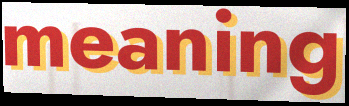
meaning